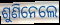
ଶୁଣିନେଲେ